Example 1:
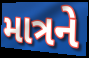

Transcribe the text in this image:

માત્રને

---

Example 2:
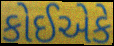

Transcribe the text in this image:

કોઈએકે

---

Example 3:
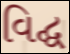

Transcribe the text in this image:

વિદ્ઘ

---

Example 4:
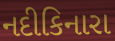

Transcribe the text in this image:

નદીકિનારા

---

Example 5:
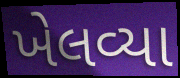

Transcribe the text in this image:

ખેલવ્યા